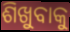
ଶିଖୁବାକୁ